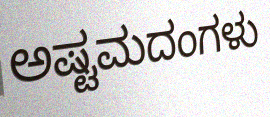
ಅಷ್ಟಮದಂಗಳು